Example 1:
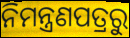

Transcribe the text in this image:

ନିମନ୍ତ୍ରଣପତ୍ରରୁ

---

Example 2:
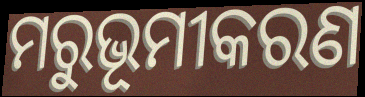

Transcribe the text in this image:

ମରୁଭୂମୀକରଣ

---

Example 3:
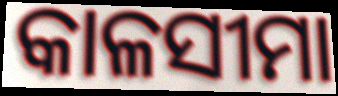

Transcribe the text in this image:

କାଳସୀମା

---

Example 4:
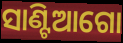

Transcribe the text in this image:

ସାଣ୍ଟିଆଗୋ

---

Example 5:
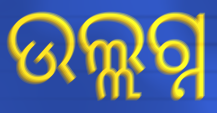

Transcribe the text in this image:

ଉଲ୍ଲଗ୍ନ